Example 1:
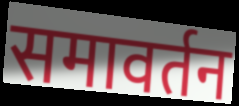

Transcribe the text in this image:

समावर्तन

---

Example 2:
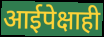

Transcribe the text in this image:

आईपेक्षाही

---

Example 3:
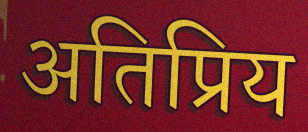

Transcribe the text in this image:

अतिप्रिय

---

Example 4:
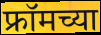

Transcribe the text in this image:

फ्रॉमच्या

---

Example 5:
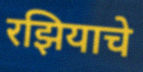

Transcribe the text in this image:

रझियाचे